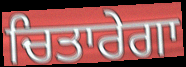
ਚਿਤਾਰੇਗਾ